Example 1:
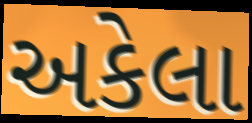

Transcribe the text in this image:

અકેલા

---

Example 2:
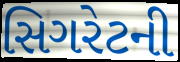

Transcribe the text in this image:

સિગરેટની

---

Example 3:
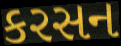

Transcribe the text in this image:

કરસન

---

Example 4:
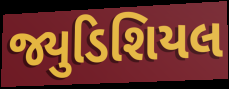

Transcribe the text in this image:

જ્યુડિશિયલ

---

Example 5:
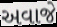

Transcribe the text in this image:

અવાજે